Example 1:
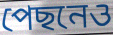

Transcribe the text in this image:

পেছনেও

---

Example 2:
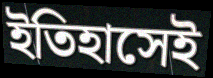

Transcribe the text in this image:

ইতিহাসেই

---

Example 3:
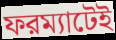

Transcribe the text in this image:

ফরম্যাটেই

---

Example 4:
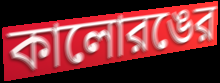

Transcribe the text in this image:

কালোরঙের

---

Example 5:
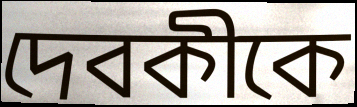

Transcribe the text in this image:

দেবকীকে